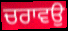
ਚਰਾਵਉ